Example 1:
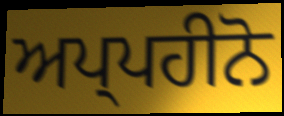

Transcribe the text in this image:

ਅਪ੍ਪਹੀਨੋ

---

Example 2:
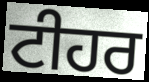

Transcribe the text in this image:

ਟੀਹਰ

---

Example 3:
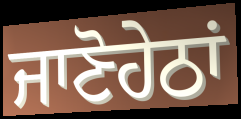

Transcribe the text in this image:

ਜਾਣੋਹੇਠਾਂ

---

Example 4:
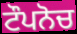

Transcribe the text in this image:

ਟੌਪਨੋਚ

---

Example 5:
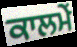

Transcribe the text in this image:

ਕਾਲਮੇਂ